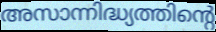
അസാന്നിദ്ധ്യത്തിന്റെ